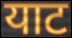
याट